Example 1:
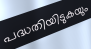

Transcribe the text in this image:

പദ്ധതിയിടുകയും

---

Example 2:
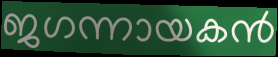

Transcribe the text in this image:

ജഗന്നായകൻ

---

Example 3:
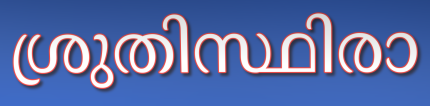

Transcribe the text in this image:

ശ്രുതിസ്ഥിരാ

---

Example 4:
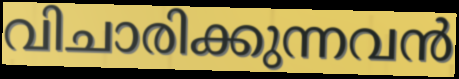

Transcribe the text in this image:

വിചാരിക്കുന്നവൻ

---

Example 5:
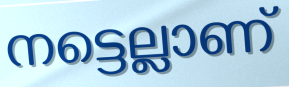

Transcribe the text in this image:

നട്ടെല്ലാണ്